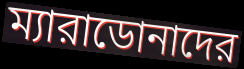
ম্যারাডোনাদের